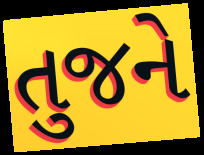
તુજને